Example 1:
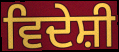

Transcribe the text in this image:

ਵਿਦੇਸ਼ੀ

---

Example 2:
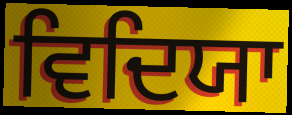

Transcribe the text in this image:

ਵਿਦਿਯਾ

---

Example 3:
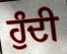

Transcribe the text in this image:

ਹੁੰਦੀ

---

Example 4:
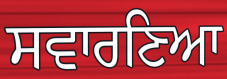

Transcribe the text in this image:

ਸਵਾਰਣਿਆ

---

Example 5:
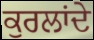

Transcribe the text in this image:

ਕੁਰਲਾਂਦੇ